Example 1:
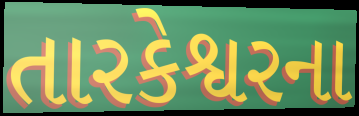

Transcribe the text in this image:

તારકેશ્વરના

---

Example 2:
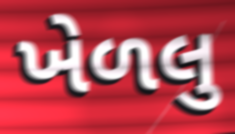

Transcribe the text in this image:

ખેળલુ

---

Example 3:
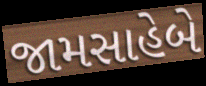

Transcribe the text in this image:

જામસાહેબે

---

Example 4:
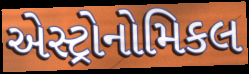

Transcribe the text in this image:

એસ્ટ્રોનોમિકલ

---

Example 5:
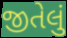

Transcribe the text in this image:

જીતેલું